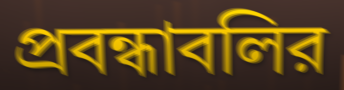
প্রবন্ধাবলির